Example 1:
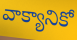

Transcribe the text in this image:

వాక్యానికో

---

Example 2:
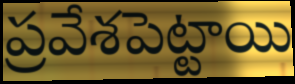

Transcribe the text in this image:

ప్రవేశపెట్టాయి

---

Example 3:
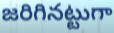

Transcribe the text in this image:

జరిగినట్టుగా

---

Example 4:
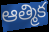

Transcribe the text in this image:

ఆత్మిక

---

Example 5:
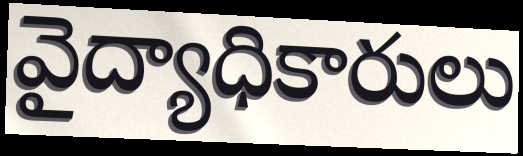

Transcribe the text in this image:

వైద్యాధికారులు